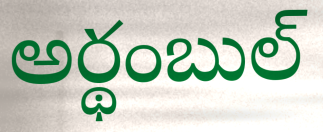
అర్థంబుల్